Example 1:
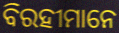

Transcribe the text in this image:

ବିରହୀମାନେ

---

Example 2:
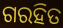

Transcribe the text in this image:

ଗରହିତ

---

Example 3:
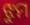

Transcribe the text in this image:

ଝୁମ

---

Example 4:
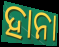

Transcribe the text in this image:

ହାନା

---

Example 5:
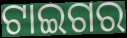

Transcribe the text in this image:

ଟାଇଗର